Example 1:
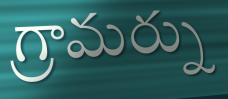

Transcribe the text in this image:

గ్రామర్ను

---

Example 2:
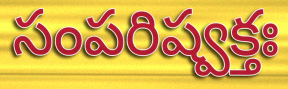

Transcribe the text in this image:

సంపరిష్వక్తః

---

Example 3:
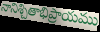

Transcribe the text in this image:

నానిశ్చితాభిప్రాయము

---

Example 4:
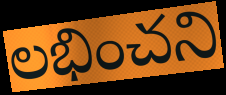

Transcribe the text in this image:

లభించని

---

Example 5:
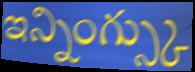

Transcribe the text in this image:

ఇన్నింగ్స్కు